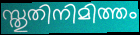
സ്തുതിനിമിത്തം